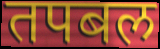
तपबल